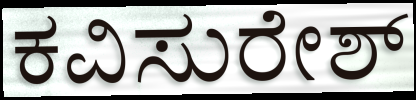
ಕವಿಸುರೇಶ್